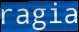
ragia